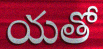
యతో